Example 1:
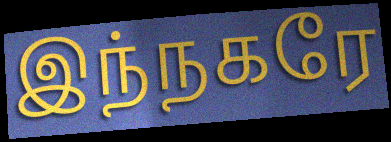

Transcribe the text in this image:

இந்நகரே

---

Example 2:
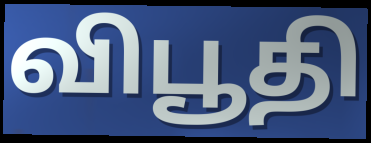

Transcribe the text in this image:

விபூதி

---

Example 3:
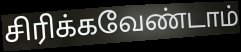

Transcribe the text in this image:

சிரிக்கவேண்டாம்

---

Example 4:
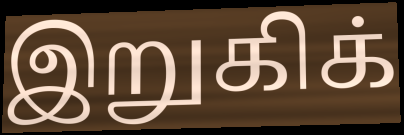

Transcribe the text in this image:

இறுகிக்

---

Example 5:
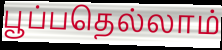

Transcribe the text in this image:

பூப்பதெல்லாம்